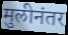
मुलीनंतर